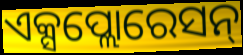
ଏକ୍ସପ୍ଲୋରେସନ୍